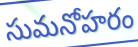
సుమనోహరం